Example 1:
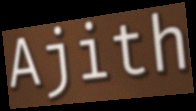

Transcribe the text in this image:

Ajith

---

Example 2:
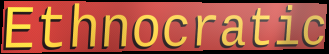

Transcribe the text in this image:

Ethnocratic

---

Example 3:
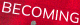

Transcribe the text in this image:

BECOMING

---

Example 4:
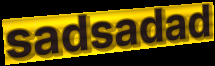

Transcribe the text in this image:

sadsadad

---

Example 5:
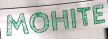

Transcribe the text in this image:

MOHITE